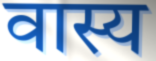
वास्य